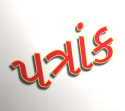
પત્રાંક